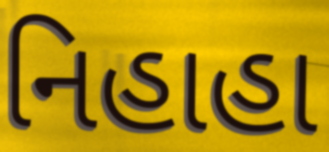
નિહાહા